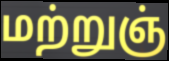
மற்றுஞ்